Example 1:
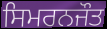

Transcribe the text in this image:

ਸਿਮਰਨਜੌਤ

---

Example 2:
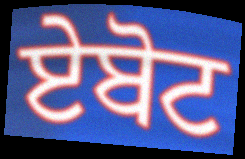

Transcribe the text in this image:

ਏਬੋਟ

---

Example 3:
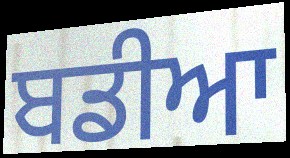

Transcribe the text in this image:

ਬਡੀਆ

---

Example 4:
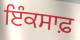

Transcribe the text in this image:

ਇੰਕਸਾਫ਼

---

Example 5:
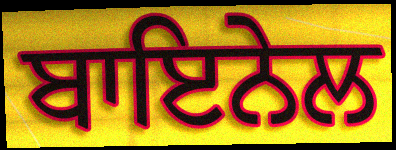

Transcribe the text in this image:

ਬਾਇਨੇਲ